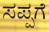
ಸಪ್ಪಗೆ